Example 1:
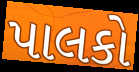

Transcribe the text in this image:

પાલકો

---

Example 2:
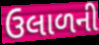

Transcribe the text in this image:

ઉલાળની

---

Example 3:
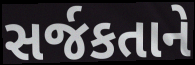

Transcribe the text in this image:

સર્જકતાને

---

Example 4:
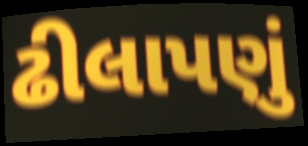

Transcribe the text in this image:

ઢીલાપણું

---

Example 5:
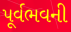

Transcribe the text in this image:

પૂર્વભવની